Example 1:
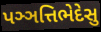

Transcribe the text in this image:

પઞ્ઞત્તિભેદેસુ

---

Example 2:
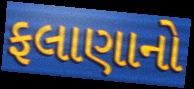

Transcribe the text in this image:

ફલાણાનો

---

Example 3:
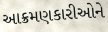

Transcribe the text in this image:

આક્રમણકારીઓને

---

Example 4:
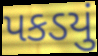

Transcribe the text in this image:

પકડયું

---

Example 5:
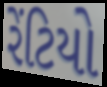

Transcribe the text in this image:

રેંટિયો